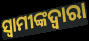
ସ୍ୱାମୀଙ୍କଦ୍ୱାରା